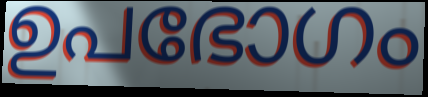
ഉപഭോഗം